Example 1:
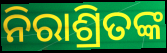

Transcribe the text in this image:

ନିରାଶ୍ରିତଙ୍କ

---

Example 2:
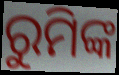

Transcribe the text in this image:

ରୁମିଙ୍କ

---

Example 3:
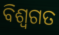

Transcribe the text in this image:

ବିଶ୍ଵଗତ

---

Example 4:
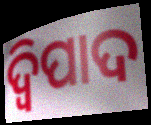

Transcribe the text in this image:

ଦ୍ୱିପାଦ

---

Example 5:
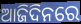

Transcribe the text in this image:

ଆଜିଦିନରେ